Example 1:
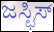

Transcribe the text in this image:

ಜಸ್ಟಿಸ್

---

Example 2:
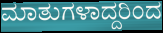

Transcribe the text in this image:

ಮಾತುಗಳಾದ್ದರಿಂದ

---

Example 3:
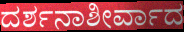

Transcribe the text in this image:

ದರ್ಶನಾಶೀರ್ವಾದ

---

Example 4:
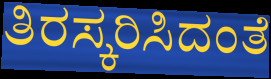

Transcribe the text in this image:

ತಿರಸ್ಕರಿಸಿದಂತೆ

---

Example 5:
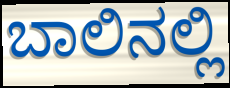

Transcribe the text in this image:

ಬಾಲಿನಲ್ಲಿ